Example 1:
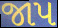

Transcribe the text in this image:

જાપ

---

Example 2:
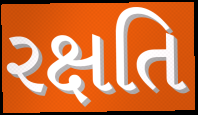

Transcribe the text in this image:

રક્ષતિ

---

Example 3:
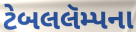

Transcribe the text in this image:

ટેબલલૅમ્પના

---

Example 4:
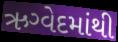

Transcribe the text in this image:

ઋગ્વેદમાંથી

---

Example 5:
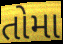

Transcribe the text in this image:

તોમા